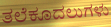
ತಲೆಕೂದಲುಗಳು